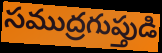
సముద్రగుప్తుడి